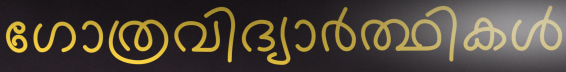
ഗോത്രവിദ്യാർത്ഥികൾ